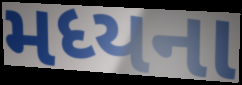
મધ્યના